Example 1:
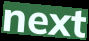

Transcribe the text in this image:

next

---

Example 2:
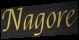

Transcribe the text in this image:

Nagore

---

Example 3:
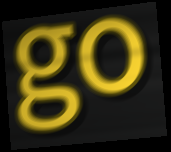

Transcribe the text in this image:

go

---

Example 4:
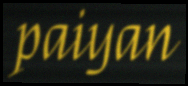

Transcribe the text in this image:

paiyan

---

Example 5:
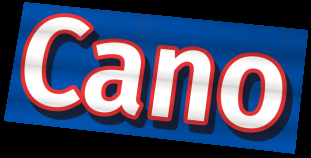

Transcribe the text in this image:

Cano